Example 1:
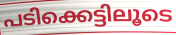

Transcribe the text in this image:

പടിക്കെട്ടിലൂടെ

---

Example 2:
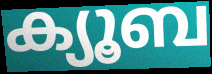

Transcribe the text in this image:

ക്യൂബ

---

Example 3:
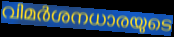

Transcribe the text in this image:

വിമർശനധാരയുടെ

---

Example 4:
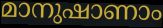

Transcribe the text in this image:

മാനുഷാണാം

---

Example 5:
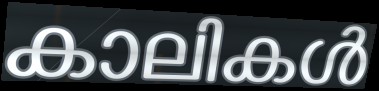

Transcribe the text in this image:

കാലികൾ